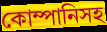
কোম্পানিসহ